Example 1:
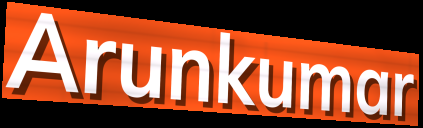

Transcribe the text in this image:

Arunkumar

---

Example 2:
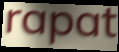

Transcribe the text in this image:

rapat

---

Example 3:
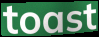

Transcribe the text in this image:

toast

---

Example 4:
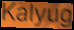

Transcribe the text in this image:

Kalyug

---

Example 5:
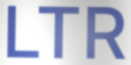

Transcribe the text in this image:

LTR